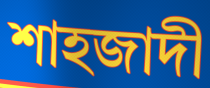
শাহজাদী